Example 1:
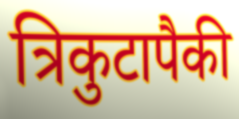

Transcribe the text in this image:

त्रिकुटापैकी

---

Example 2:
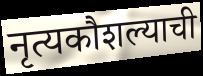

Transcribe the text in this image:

नृत्यकौशल्याची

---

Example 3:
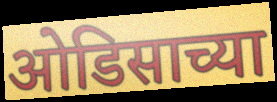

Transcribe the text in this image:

ओडिसाच्या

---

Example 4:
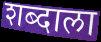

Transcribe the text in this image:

शब्दाला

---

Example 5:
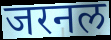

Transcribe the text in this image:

जरनल